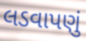
લડવાપણું